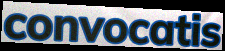
convocatis